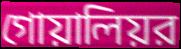
গোয়ালিয়র